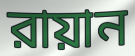
রায়ান